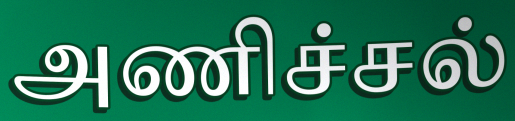
அணிச்சல்